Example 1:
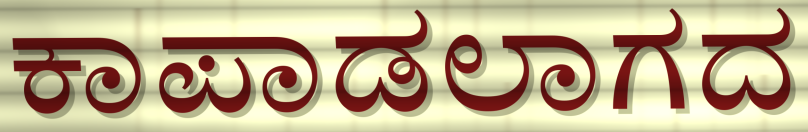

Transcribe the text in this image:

ಕಾಪಾಡಲಾಗದ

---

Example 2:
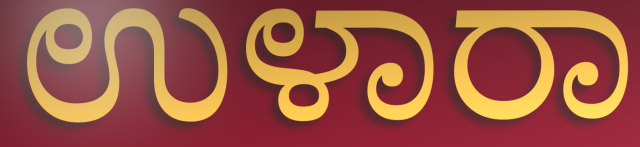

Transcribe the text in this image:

ಉಳಾರಾ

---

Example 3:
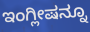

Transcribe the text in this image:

ಇಂಗ್ಲೀಷನ್ನೂ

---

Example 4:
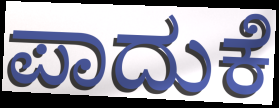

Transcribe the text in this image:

ಪಾದುಕೆ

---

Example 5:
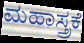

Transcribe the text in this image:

ಮಹಾಸ್ತ್ರಕೆ